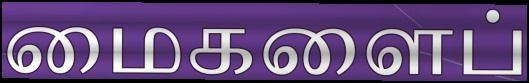
மைகளைப்